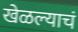
खेळल्याचं